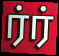
ர்ர்